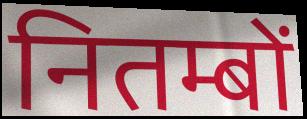
नितम्बों